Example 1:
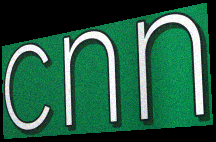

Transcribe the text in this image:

cnn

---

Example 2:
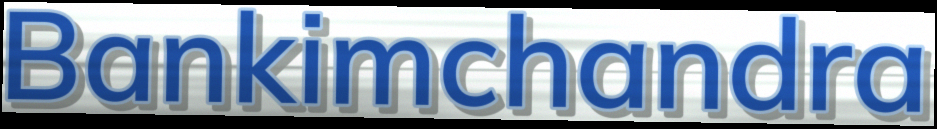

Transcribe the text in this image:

Bankimchandra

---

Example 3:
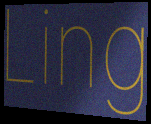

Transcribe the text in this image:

Ling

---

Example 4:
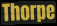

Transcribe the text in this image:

Thorpe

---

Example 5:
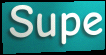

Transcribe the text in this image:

Supe